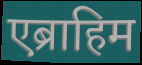
एब्राहिम